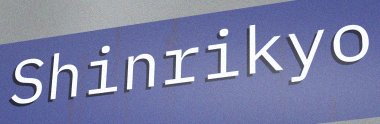
Shinrikyo